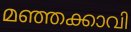
മഞ്ഞക്കാവി